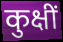
कुक्षीं